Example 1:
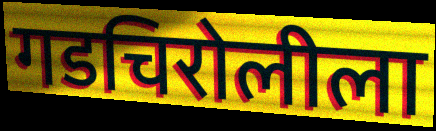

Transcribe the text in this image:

गडचिरोलीला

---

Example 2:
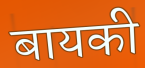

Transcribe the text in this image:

बायकी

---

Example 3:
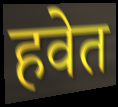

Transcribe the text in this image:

हवेत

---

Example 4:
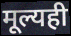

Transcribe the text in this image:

मूल्यही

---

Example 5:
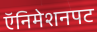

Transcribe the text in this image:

ऍनिमेशनपट